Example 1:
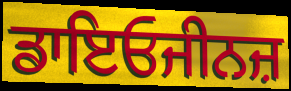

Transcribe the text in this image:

ਡਾਇਓਜੀਨਜ਼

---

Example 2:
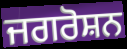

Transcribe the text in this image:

ਜਗਰੋਸ਼ਨ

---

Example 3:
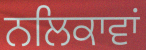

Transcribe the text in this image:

ਨਲਿਕਾਵਾਂ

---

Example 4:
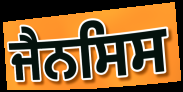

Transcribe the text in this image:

ਜੈਨਸਿਸ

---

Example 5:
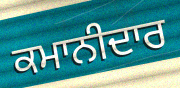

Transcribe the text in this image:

ਕਮਾਨੀਦਾਰ